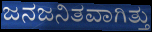
ಜನಜನಿತವಾಗಿತ್ತು